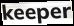
keeper